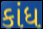
કાંધ